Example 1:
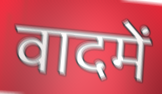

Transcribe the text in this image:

वादमें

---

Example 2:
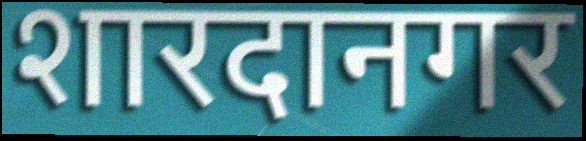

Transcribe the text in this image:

शारदानगर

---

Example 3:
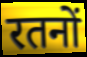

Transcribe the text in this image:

रतनों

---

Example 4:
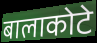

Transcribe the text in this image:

बालाकोटे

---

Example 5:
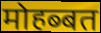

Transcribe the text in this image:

मोहब्‍बत